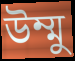
উম্মু